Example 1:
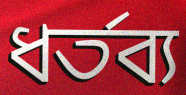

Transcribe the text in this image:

ধর্তব্য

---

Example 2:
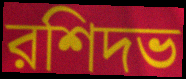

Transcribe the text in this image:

রশিদভ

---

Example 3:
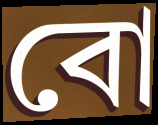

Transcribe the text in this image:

বো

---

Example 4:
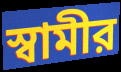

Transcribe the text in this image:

স্বামীর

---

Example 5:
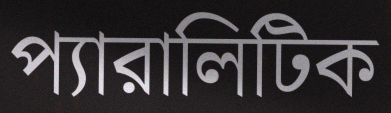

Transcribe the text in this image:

প্যারালিটিক